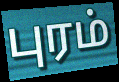
புரம்